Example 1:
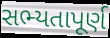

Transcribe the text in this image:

સભ્યતાપૂર્ણ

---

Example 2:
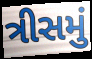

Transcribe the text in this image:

ત્રીસમું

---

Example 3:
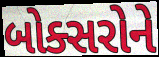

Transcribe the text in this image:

બોક્સરોને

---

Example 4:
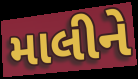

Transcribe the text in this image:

માલીને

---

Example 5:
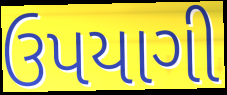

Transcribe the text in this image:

ઉપયાગી